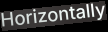
Horizontally